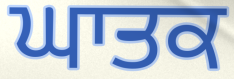
ਘਾਤਕ